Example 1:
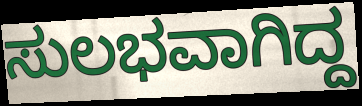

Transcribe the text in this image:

ಸುಲಭವಾಗಿದ್ದ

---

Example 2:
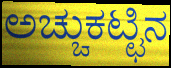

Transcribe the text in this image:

ಅಚ್ಚುಕಟ್ಟಿನ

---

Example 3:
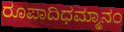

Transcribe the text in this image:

ರೂಪಾದಿಧಮ್ಮಾನಂ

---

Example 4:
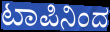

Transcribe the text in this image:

ಟಾಪಿನಿಂದ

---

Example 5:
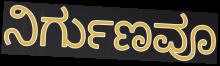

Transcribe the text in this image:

ನಿರ್ಗುಣವೂ